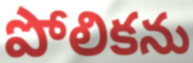
పోలికను